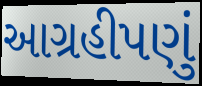
આગ્રહીપણું